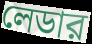
লেডার